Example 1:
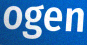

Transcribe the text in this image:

ogen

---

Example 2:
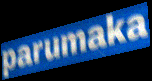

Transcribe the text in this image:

parumaka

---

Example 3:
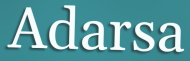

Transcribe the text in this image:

Adarsa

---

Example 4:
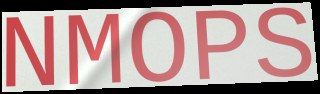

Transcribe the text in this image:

NMOPS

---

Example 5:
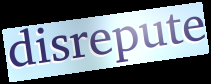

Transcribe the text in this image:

disrepute